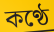
কণ্ঠে